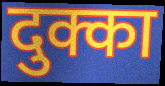
दुक्‍का